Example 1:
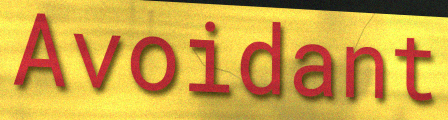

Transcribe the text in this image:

Avoidant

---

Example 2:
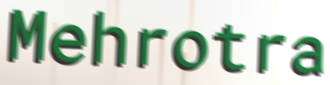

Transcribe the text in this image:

Mehrotra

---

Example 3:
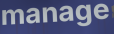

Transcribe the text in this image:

manage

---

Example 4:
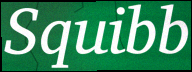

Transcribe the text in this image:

Squibb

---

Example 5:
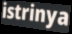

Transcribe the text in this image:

istrinya